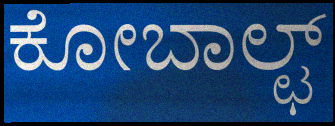
ಕೋಬಾಲ್ಟ್